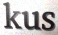
kus